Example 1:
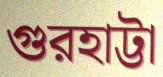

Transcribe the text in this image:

গুরহাট্টা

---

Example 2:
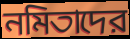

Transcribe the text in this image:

নমিতাদের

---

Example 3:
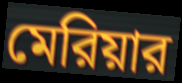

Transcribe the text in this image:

মেরিয়ার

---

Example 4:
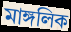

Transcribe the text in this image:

মাঙ্গলিক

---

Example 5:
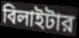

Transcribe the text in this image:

বিলাইটার